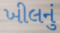
ખીલનું